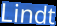
Lindt